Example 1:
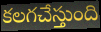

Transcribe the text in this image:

కలగచేస్తుంది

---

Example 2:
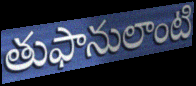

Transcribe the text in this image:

తుఫానులాంటి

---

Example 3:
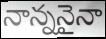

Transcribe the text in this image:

నాన్ననైనా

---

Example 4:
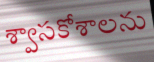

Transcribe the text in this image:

శ్వాసకోశాలను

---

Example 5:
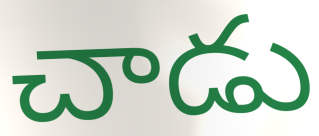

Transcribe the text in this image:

చాడు